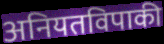
अनियतविपाकी